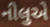
નીલુએ